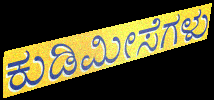
ಕುಡಿಮೀಸೆಗಳು